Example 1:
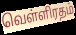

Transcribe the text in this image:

வெள்ளிரதம்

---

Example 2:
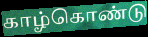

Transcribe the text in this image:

காழ்கொண்டு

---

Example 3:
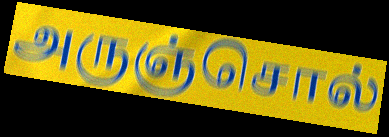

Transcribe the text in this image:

அருஞ்சொல்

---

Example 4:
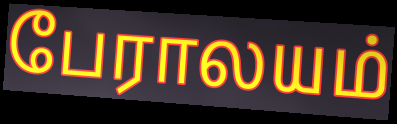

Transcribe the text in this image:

பேராலயம்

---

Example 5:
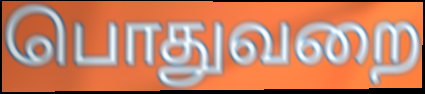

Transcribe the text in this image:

பொதுவறை